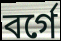
বর্গে